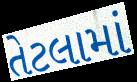
તેટલામાં